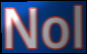
Nol